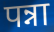
पन्ना